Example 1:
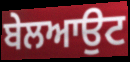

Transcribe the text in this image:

ਬੇਲਆਉਟ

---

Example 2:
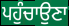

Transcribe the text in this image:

ਪਹੁੰਚਾਉਣਾ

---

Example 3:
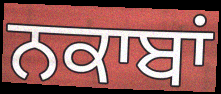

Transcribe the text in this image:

ਨਕਾਬਾਂ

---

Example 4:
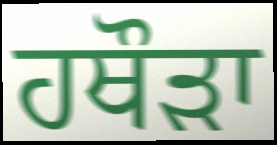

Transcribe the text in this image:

ਹਥੌੜਾ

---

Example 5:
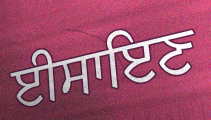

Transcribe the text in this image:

ਈਸਾਇਣ